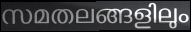
സമതലങ്ങളിലും